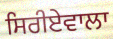
ਸਿਰੀਏਵਾਲਾ